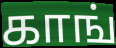
காங்